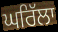
ਘਰਿੱਲਾ